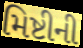
મિષ્ટીની